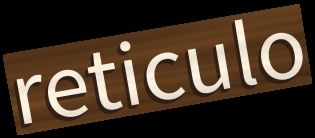
reticulo